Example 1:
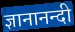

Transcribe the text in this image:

ज्ञानानन्दी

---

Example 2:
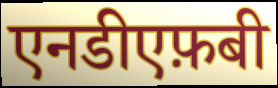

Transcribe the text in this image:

एनडीएफ़बी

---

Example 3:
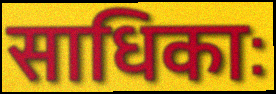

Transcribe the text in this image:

साधिकाः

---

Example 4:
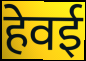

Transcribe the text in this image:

हेवई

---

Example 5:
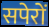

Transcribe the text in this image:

सपेरों